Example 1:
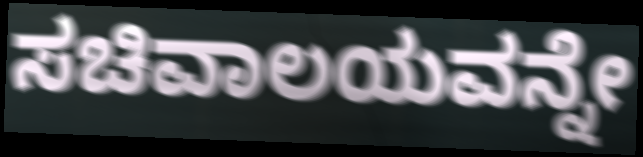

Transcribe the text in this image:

ಸಚಿವಾಲಯವನ್ನೇ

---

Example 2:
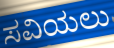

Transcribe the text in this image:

ಸವಿಯಲು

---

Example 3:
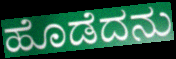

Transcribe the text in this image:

ಹೊಡೆದನು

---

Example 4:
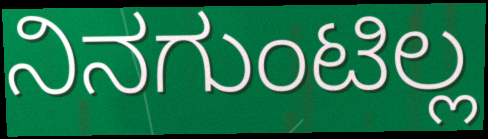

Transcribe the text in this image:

ನಿನಗುಂಟಿಲ್ಲ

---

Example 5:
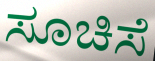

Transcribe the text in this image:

ಸೂಚಿಸೆ